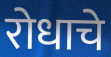
रोधाचे